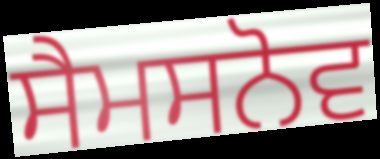
ਸੈਮਸਨੋਵ